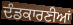
ਦੰਡਕਾਰਣੀਆਂ